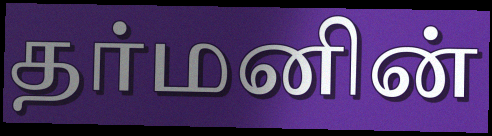
தர்மனின்